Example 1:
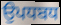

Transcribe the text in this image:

ਉਪਧਬਧ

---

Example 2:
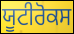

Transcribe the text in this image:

ਯੂਟੀਰੋਕਸ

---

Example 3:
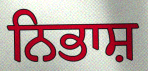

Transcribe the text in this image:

ਨਿਭਾਸ਼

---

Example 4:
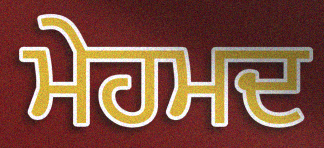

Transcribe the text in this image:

ਮੇਹਮਦ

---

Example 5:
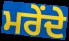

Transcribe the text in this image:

ਮਰੇਂਦੇ